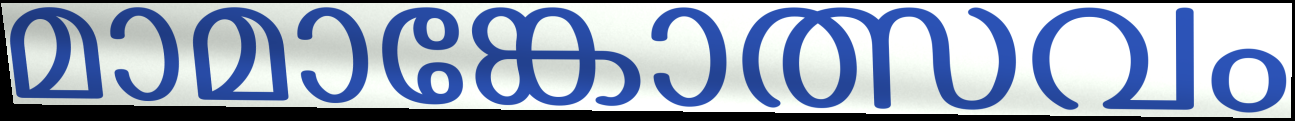
മാമാങ്കോത്സവം